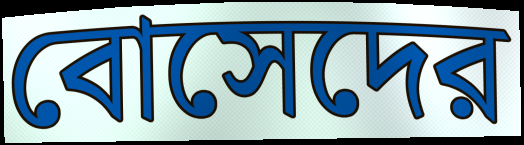
বোসেদের